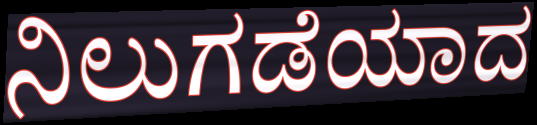
ನಿಲುಗಡೆಯಾದ